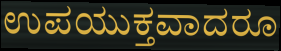
ಉಪಯುಕ್ತವಾದರೂ